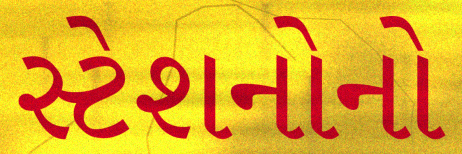
સ્ટેશનોનો